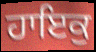
ਹਾਇਕੁ